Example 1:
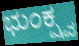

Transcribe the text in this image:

ಭುಂಕ್ಷ್ವ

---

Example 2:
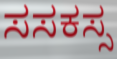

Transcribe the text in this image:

ಸಸಕಸ್ಸ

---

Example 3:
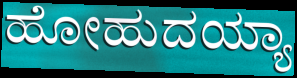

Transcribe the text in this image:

ಹೋಹುದಯ್ಯಾ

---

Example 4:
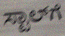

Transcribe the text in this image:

ಸ್ಟಾಲ್‌ಗೆ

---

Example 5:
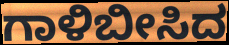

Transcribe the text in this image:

ಗಾಳಿಬೀಸಿದ